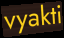
vyakti